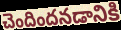
చెందిందనడానికి